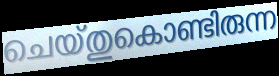
ചെയ്തുകൊണ്ടിരുന്ന